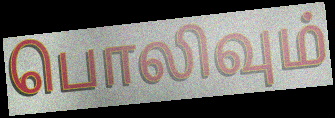
பொலிவும்